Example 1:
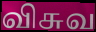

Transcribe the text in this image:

விசுவ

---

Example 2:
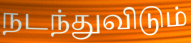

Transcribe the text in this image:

நடந்துவிடும்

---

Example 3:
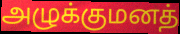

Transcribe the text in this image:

அழுக்குமனத்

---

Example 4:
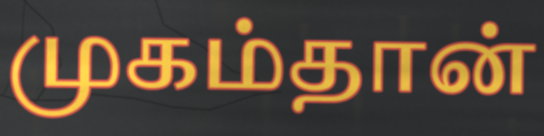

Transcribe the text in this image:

முகம்தான்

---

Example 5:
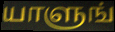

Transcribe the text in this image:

யாளுங்